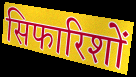
सिफारिशों